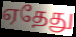
ஏதேது